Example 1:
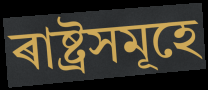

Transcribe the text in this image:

ৰাষ্ট্ৰসমূহে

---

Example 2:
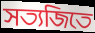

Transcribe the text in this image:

সত্যজিতে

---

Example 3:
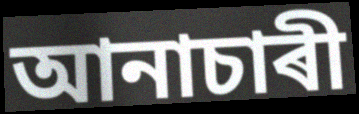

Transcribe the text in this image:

আনাচাৰী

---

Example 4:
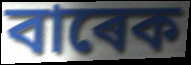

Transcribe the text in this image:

বাৰেক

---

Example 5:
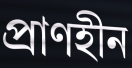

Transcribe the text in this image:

প্ৰাণহীন